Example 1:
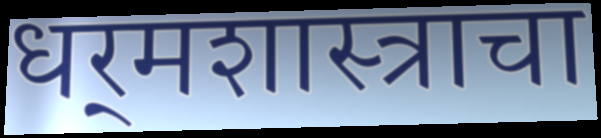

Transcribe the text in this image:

धर्मशास्त्राचा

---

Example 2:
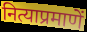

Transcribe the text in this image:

नित्याप्रमाणें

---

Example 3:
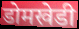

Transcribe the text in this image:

डोमखेडी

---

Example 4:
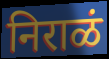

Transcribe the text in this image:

निराळं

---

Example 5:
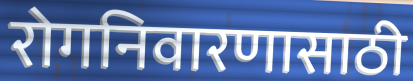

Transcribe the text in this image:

रोगनिवारणासाठी